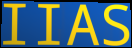
IIAS